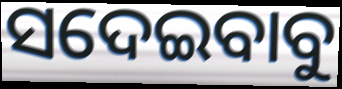
ସଦେଇବାବୁ